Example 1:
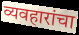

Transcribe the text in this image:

व्यवहारांचा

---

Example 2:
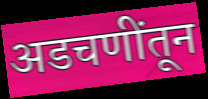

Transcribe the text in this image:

अडचणींतून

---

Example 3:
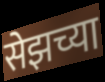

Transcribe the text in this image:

सेझच्या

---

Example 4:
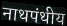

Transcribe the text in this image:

नाथपंथीय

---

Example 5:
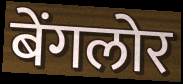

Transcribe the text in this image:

बेंगलोर